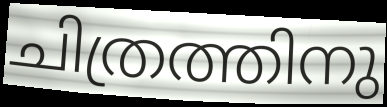
ചിത്രത്തിനു